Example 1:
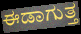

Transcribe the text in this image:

ಈಡಾಗುತ್ತ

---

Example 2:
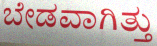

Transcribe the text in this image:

ಬೇಡವಾಗಿತ್ತು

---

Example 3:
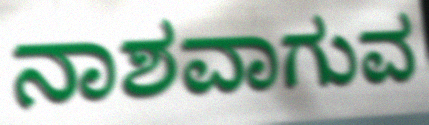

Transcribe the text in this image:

ನಾಶವಾಗುವ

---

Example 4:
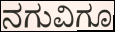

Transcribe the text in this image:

ನಗುವಿಗೂ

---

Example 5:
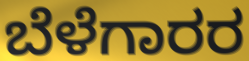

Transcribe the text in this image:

ಬೆಳೆಗಾರರ